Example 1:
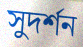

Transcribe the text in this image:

সুদর্শন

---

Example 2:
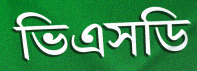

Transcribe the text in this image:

ভিএসডি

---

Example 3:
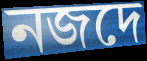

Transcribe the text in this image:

নজদে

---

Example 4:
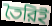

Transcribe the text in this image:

তৈরিই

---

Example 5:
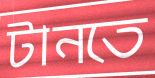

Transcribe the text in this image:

টানতে